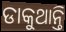
ଡାକୁଥାନ୍ତି